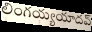
లింగయ్యయాదవ్